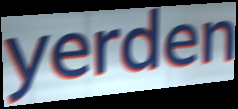
yerden